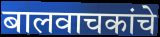
बालवाचकांचे